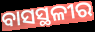
ବାସସ୍ଥଳୀର